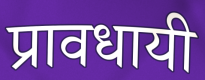
प्रावधायी